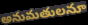
అనుమతులనూ